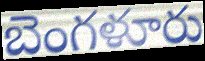
బెంగళూరు